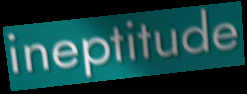
ineptitude